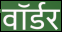
वॉर्डर